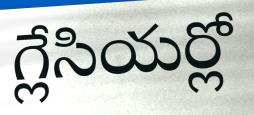
గ్లేసియర్లో